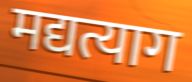
मद्यत्याग